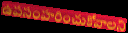
ఉపసంహరించుకోవాలని